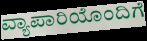
ವ್ಯಾಪಾರಿಯೊಂದಿಗೆ